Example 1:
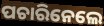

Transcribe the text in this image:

ପଚାରିନେଲେ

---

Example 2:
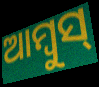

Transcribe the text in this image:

ଆମ୍ବୁସ୍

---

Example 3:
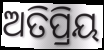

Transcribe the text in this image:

ଅତିପ୍ରିୟ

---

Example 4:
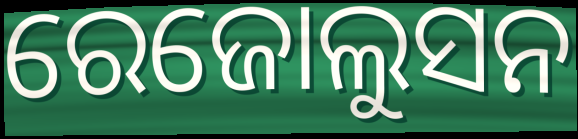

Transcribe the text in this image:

ରେଜୋଲୁସନ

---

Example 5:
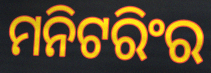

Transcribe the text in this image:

ମନିଟରିଂର